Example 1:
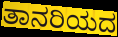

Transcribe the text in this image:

ತಾನರಿಯದ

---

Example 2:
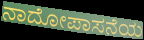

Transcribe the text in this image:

ನಾದೋಪಾಸನೆಯ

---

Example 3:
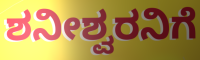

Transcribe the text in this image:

ಶನೀಶ್ವರನಿಗೆ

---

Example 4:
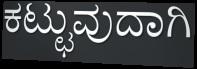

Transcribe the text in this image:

ಕಟ್ಟುವುದಾಗಿ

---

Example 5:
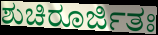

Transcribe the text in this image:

ಶುಚಿರೂರ್ಜಿತಃ